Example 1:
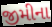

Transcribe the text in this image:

જીમીના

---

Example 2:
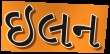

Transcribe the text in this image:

ઇલન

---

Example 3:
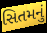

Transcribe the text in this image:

સિતમનું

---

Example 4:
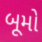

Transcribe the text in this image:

બૂમો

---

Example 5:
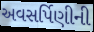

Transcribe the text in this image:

અવસર્પિણીની